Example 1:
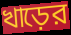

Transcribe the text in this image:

খাড়ের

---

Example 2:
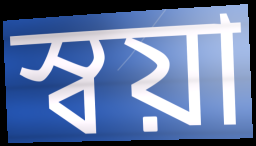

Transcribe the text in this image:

স্বয়া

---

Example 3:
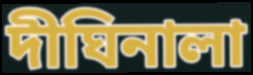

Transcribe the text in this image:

দীঘিনালা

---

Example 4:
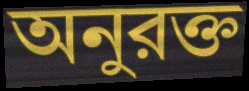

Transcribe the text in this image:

অনুরক্ত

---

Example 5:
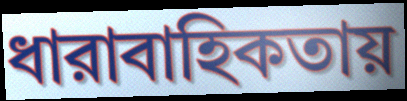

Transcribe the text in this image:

ধারাবাহিকতায়